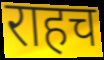
राहच